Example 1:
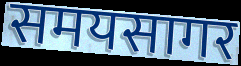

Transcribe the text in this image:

समयसागर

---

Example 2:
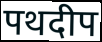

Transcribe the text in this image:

पथदीप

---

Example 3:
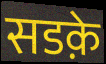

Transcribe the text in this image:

सडक़े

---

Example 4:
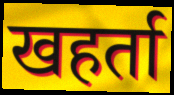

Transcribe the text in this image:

खहर्ता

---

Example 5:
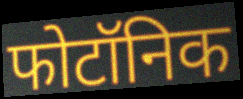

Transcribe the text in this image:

फोटॉनिक